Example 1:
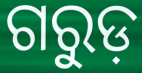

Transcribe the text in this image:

ଗରୁଡ଼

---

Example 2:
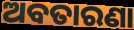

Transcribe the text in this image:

ଅବତାରଣା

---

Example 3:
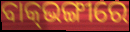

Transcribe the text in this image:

ବାକ୍‍ଭଙ୍ଗୀରେ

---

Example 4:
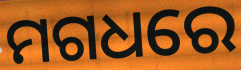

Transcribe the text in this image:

ମଗଧରେ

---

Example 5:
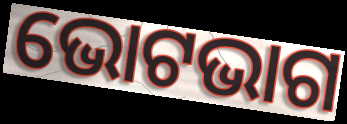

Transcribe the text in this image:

ଭୋଟଭାଗ